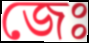
জেঃ